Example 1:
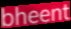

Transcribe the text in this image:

bheent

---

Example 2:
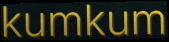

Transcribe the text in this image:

kumkum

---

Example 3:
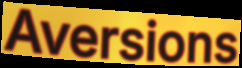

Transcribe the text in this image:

Aversions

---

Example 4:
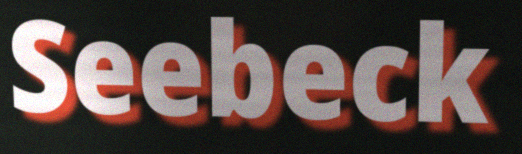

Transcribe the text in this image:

Seebeck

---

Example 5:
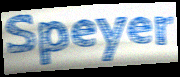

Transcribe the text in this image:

Speyer